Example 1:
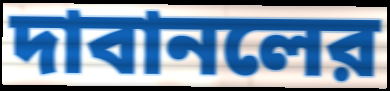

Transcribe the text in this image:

দাবানলের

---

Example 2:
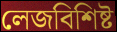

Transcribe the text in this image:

লেজবিশিষ্ট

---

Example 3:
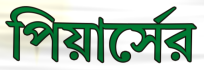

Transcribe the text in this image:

পিয়ার্সের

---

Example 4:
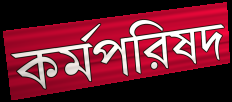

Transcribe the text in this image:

কর্মপরিষদ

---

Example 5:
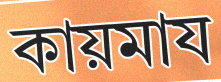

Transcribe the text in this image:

কায়মায